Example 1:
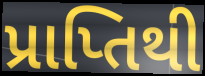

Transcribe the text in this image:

પ્રાપ્તિથી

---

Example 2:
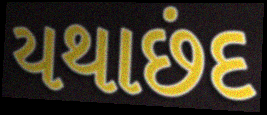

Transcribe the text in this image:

યથાછંદ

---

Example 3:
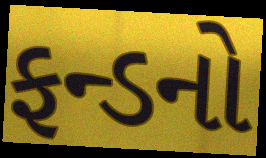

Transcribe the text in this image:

ફન્ડનો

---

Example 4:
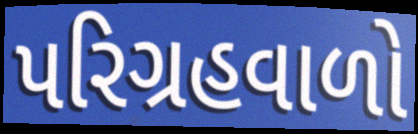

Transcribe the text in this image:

પરિગ્રહવાળો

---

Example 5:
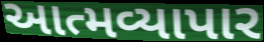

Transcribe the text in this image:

આત્મવ્યાપાર